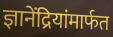
ज्ञानेंद्रियांमार्फत